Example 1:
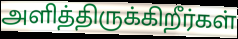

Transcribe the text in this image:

அளித்திருக்கிறீர்கள்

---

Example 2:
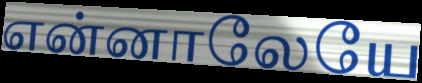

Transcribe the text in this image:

என்னாலேயே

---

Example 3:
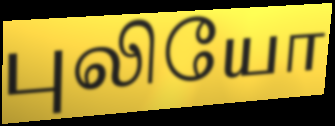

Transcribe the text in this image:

புலியோ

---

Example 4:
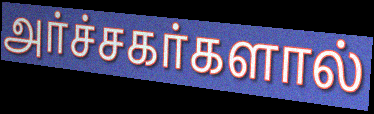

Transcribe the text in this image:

அர்ச்சகர்களால்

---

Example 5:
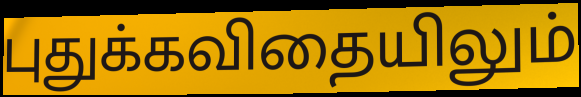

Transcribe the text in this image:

புதுக்கவிதையிலும்